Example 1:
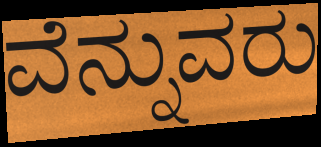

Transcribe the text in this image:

ವೆನ್ನುವರು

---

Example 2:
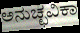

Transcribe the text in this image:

ಅನುಚ್ಛವಿಕಾ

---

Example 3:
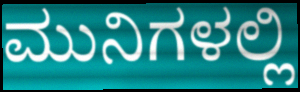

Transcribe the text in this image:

ಮುನಿಗಳಲ್ಲಿ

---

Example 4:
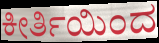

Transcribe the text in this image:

ಕೀರ್ತಿಯಿಂದ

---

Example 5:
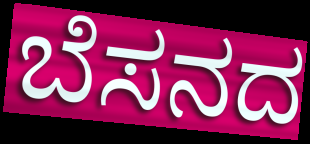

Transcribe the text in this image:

ಬೆಸನದ